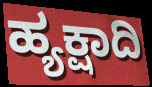
ಹ್ಯಕ್ಷಾದಿ